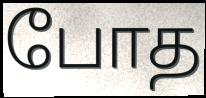
போத